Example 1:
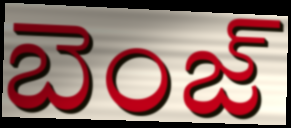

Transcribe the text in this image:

బెంజ్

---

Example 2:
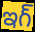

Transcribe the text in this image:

ఇగ్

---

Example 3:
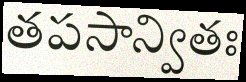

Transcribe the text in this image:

తపసాన్వితః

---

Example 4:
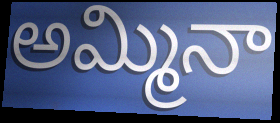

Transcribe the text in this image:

అమ్మినా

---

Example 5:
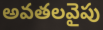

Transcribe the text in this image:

అవతలవైపు